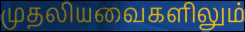
முதலியவைகளிலும்